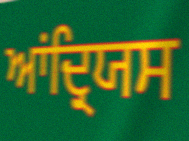
ਆਂਦ੍ਰਿਯਸ